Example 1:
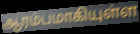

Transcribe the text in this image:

ஆரம்பமாகியுள்ள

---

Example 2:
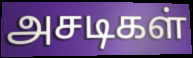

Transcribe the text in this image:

அசடிகள்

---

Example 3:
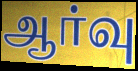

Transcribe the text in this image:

ஆர்வு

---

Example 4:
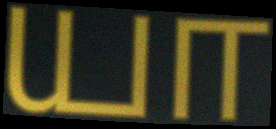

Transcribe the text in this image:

யா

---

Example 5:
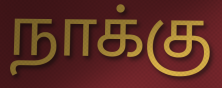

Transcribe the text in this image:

நாக்கு